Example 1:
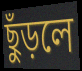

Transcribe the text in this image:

ছুঁড়লে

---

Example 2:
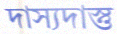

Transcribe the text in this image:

দাস্যদাস্তু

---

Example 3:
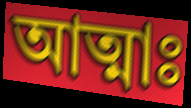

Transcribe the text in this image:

আত্মাঃ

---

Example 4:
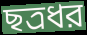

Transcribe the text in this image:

ছত্রধর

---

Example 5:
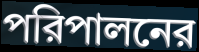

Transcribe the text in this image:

পরিপালনের